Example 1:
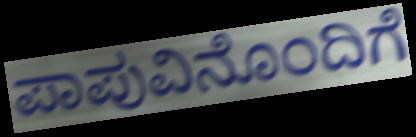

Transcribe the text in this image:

ಪಾಪುವಿನೊಂದಿಗೆ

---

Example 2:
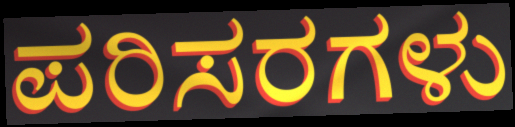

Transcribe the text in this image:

ಪರಿಸರಗಳು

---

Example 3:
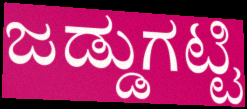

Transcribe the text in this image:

ಜಡ್ಡುಗಟ್ಟಿ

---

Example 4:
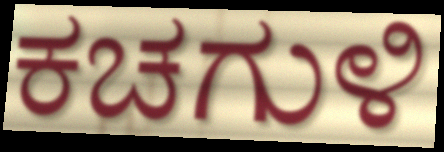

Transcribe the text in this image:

ಕಚಗುಳಿ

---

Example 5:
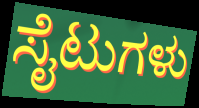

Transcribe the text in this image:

ಸೈಟುಗಳು